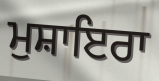
ਮੁਸ਼ਾਇਰਾ